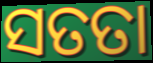
ସତତା